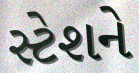
સ્ટેશને